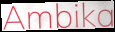
Ambika